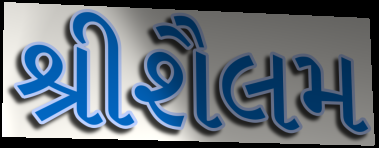
શ્રીશૈલમ